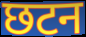
छटन